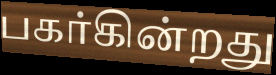
பகர்கின்றது